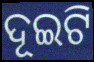
ଦୂଇଟି